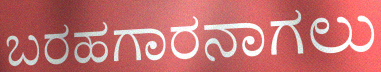
ಬರಹಗಾರನಾಗಲು